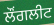
ਲੌਂਗਲੀਟ